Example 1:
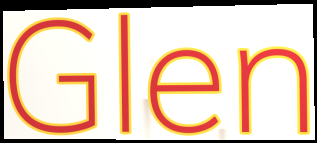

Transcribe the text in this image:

Glen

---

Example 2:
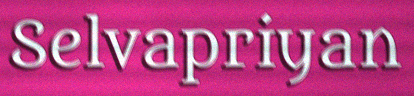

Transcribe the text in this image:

Selvapriyan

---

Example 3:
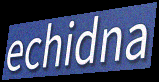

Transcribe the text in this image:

echidna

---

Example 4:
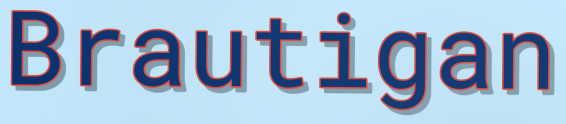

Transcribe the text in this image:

Brautigan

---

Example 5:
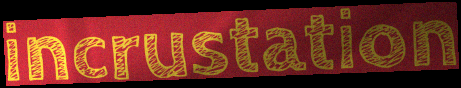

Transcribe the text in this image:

incrustation